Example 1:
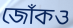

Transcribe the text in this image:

জোঁকও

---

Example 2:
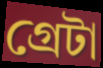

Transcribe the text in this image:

গ্রেটা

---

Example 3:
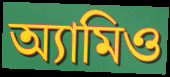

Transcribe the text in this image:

অ্যামিও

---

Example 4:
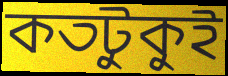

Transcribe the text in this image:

কতটুকুই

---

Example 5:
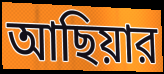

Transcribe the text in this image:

আছিয়ার